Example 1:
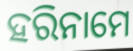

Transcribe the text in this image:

ହରିନାମେ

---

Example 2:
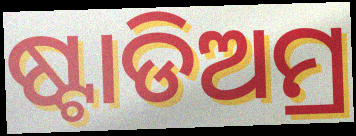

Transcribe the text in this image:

ଷ୍ଟାଡିଅମ୍ର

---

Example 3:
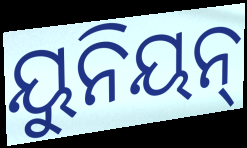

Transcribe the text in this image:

ୟୁନିୟନ୍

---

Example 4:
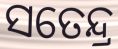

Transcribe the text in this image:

ସତେନ୍ଦ୍ର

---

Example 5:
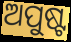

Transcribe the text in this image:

ଅପୁଷ୍ଟ